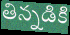
తిన్నడికి